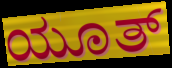
ಯೂತ್